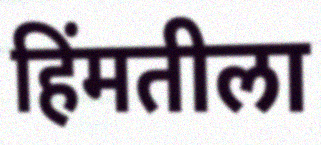
हिंमतीला